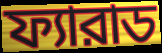
ফ্যারাড